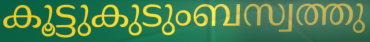
കൂട്ടുകുടുംബസ്വത്തു